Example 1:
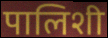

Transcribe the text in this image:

पालिशी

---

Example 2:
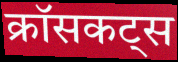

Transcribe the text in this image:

क्रॉसकट्स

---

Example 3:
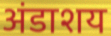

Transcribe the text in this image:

अंडाशय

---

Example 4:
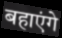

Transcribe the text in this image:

बहाएंगे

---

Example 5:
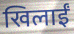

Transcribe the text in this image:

खिलाईं